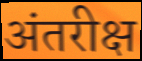
अंतरीक्ष